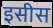
इसीस